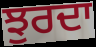
ਝੁਰਦਾ